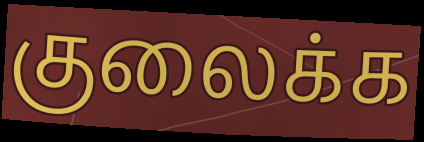
குலைக்க